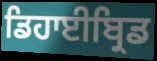
ਡਿਹਾਈਬ੍ਰਿਡ